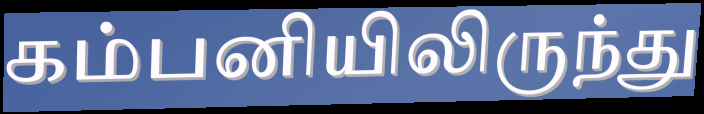
கம்பனியிலிருந்து